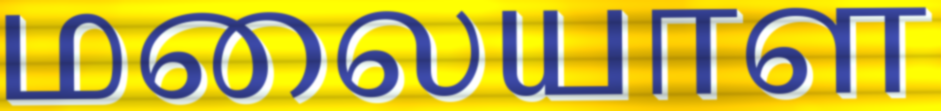
மலையாள